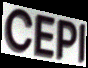
CEPI